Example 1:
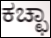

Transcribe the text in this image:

ಕಚ್ಛಾ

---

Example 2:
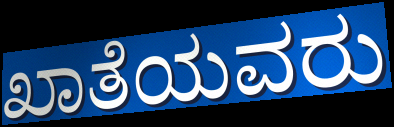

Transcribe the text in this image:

ಖಾತೆಯವರು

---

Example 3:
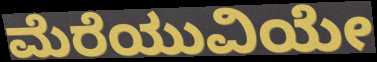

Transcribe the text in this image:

ಮೆರೆಯುವಿಯೇ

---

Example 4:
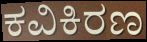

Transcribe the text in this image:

ಕವಿಕಿರಣ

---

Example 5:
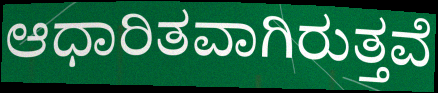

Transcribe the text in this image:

ಆಧಾರಿತವಾಗಿರುತ್ತವೆ